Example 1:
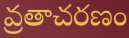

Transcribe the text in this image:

వ్రతాచరణం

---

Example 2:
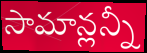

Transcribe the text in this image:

సామాన్లన్నీ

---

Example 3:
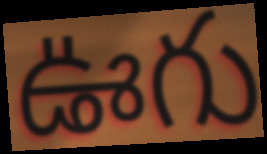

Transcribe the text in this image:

ఊగు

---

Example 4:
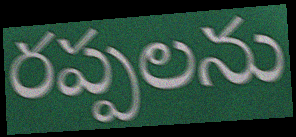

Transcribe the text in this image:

రప్పలను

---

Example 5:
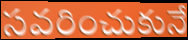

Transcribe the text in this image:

సవరించుకునే